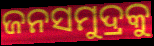
ଜନସମୁଦ୍ରକୁ